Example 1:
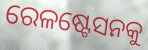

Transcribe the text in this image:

ରେଳଷ୍ଟେସନକୁ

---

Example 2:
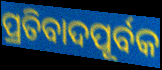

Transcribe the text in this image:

ପ୍ରତିବାଦପୂର୍ବକ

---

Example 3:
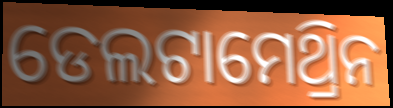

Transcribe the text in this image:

ଡେଲଟାମେଥ୍ରିନ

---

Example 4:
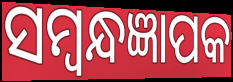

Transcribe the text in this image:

ସମ୍ବନ୍ଧଜ୍ଞାପକ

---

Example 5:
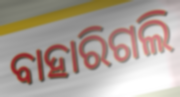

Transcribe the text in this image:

ବାହାରିଗଲି